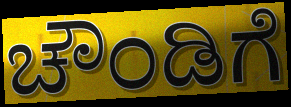
ಚೌಂಡಿಗೆ